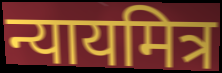
न्यायमित्र